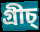
গ্ৰীচ্